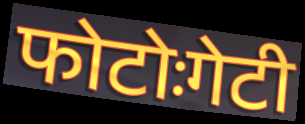
फोटोःगेटी